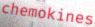
chemokines